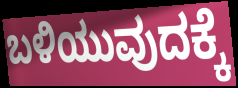
ಬಳಿಯುವುದಕ್ಕೆ